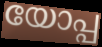
യോപ്പ